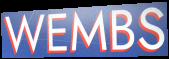
WEMBS